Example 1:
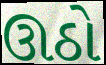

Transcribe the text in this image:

ઊઠો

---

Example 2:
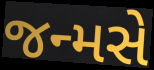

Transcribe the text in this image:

જન્મસે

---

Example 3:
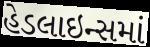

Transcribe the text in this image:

હેડલાઇન્સમાં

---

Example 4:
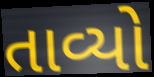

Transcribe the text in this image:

તાવ્યો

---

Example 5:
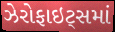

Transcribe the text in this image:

ઝેરોફાઇટ્સમાં